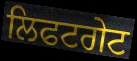
ਲਿਫਟਗੇਟ